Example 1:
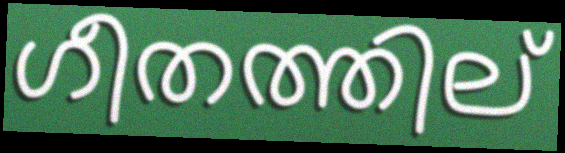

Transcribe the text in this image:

ഗീതത്തില്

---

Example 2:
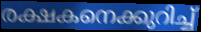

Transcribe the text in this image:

രക്ഷകനെക്കുറിച്ച്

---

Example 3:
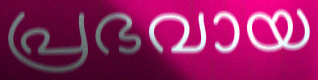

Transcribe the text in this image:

പ്രഭവായ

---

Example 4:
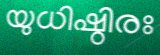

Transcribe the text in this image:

യുധിഷ്ഠിരഃ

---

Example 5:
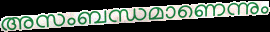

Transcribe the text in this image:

അസംബന്ധമാണെന്നും